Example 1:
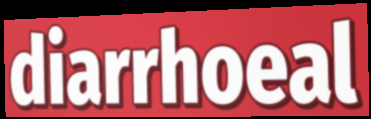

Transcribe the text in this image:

diarrhoeal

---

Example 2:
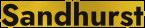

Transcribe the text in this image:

Sandhurst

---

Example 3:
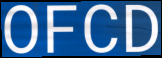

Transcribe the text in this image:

OFCD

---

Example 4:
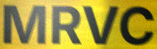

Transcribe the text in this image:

MRVC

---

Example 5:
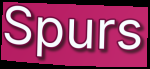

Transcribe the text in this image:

Spurs